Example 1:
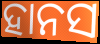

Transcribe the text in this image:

ହାନସ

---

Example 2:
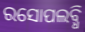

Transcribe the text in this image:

ରସୋପଲବ୍ଧି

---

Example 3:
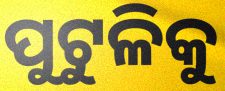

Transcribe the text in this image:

ପୁଟୁଳିକୁ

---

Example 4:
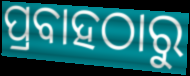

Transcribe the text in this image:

ପ୍ରବାହଠାରୁ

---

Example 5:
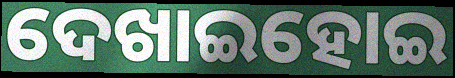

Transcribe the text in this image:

ଦେଖାଇହୋଇ